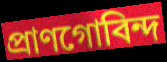
প্রাণগোবিন্দ